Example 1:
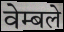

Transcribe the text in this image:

वेम्बले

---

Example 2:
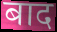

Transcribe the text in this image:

बाद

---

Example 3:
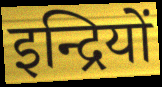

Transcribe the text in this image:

इन्द्रियों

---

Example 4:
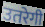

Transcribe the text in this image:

उतरेगी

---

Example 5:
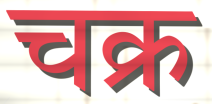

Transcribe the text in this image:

चक्र